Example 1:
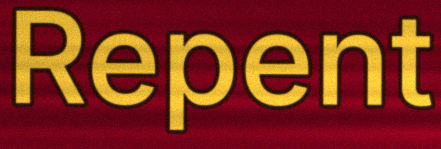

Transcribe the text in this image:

Repent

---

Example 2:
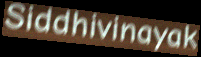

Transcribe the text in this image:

Siddhivinayak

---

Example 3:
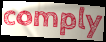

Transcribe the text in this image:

comply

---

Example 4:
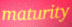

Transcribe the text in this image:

maturity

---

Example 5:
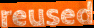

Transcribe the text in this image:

reused